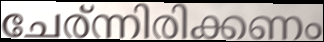
ചേര്ന്നിരിക്കണം